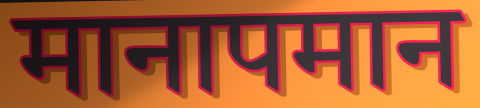
मानापमान